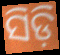
ସିଡ଼ି